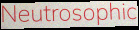
Neutrosophic